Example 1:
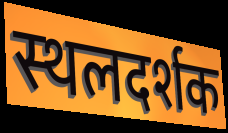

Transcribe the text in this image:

स्थलदर्शक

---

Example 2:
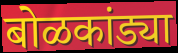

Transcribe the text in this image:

बोळकांड्या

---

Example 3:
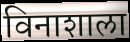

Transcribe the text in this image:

विनाशाला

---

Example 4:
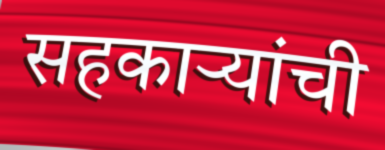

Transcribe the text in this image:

सहकाऱ्यांची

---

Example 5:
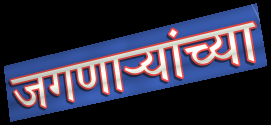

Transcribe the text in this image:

जगणाऱ्यांच्या